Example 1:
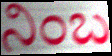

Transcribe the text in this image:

ನಿಂಬ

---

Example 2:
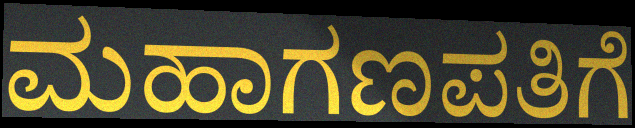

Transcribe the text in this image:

ಮಹಾಗಣಪತಿಗೆ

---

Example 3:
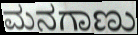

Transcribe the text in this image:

ಮನಗಾಣು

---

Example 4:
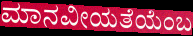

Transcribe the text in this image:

ಮಾನವೀಯತೆಯೆಂಬ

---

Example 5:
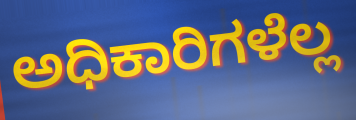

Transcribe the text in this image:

ಅಧಿಕಾರಿಗಳೆಲ್ಲ